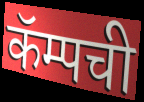
कॅम्पची